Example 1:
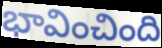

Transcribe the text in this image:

భావించింది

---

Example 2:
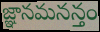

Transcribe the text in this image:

జ్ఞానమనన్తం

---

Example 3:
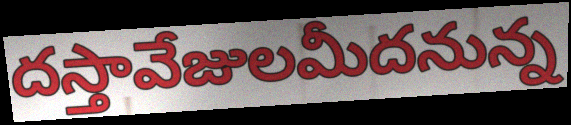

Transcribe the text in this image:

దస్తావేజులమీదనున్న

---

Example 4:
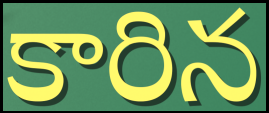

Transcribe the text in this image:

కారిన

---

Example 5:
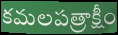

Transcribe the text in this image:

కమలపత్రాక్షీం